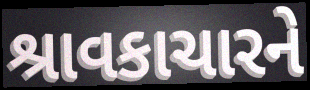
શ્રાવકાચારને